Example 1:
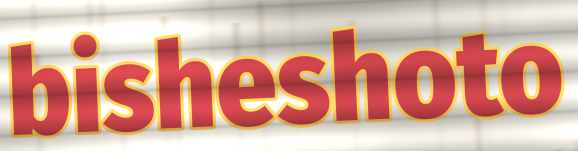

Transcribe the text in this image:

bisheshoto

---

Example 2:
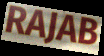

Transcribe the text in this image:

RAJAB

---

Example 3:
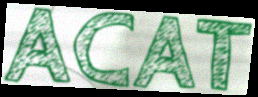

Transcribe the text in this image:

ACAT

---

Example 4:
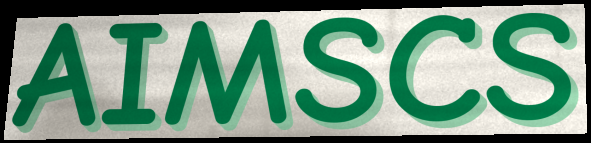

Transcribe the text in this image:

AIMSCS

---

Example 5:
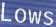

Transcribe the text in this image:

Lows